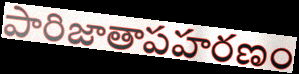
పారిజాతాపహరణం